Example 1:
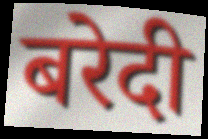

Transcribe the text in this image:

बरेदी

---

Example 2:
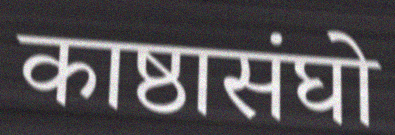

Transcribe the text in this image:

काष्ठासंघो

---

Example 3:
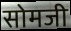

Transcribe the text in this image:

सोमजी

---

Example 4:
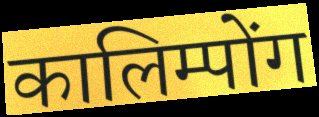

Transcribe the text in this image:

कालिम्पोंग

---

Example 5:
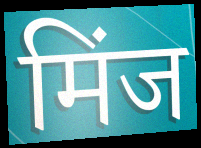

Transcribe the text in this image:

मिंज